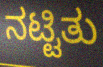
ನಟ್ಟಿತು